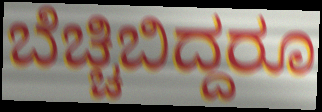
ಬೆಚ್ಚಿಬಿದ್ದರೂ